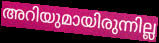
അറിയുമായിരുന്നില്ല